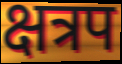
क्षत्रप